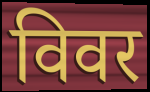
विवर